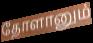
தோளானும்